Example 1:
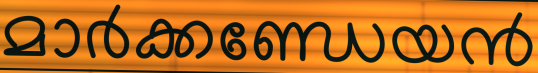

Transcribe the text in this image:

മാർക്കണ്ഡേയൻ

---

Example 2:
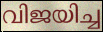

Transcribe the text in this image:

വിജയിച്ച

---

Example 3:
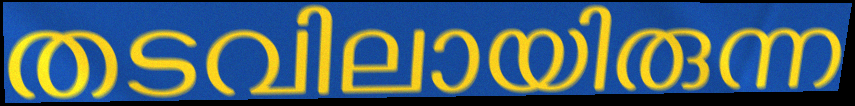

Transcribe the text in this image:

തടവിലായിരുന്ന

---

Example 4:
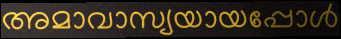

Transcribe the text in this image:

അമാവാസ്യയായപ്പോൾ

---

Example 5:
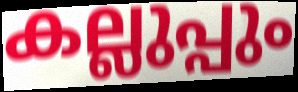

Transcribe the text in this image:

കല്ലുപ്പും